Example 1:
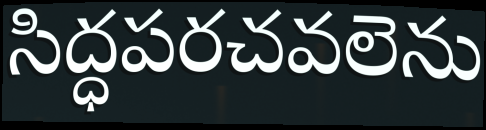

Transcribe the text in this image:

సిద్ధపరచవలెను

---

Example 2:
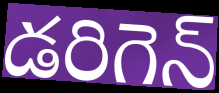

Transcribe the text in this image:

డరిగెన్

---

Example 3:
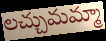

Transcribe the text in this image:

లచ్చుమమ్మా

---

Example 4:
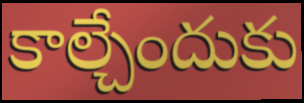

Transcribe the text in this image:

కాల్చేందుకు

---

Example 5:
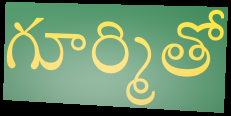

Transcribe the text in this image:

గూర్మితో